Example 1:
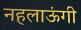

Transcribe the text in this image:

नहलाऊंगी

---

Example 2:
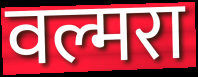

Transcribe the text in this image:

वल्मरा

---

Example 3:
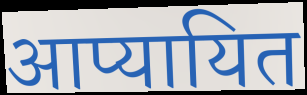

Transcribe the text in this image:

आप्यायित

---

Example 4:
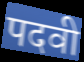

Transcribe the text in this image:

पदवी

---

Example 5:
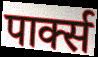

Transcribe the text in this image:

पार्क्स